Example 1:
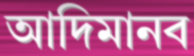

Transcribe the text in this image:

আদিমানব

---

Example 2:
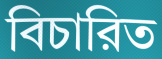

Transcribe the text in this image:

বিচারিত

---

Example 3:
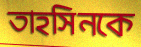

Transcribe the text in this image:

তাহসিনকে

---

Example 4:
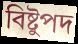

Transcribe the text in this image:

বিষ্টুপদ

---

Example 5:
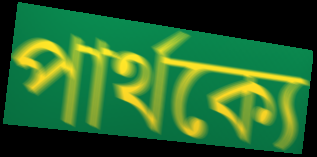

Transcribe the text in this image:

পার্থক্যে